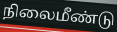
நிலைமீண்டு